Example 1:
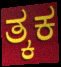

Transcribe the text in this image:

ತ್ಕಕ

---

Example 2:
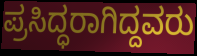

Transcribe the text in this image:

ಪ್ರಸಿದ್ಧರಾಗಿದ್ದವರು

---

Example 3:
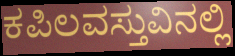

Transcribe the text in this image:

ಕಪಿಲವಸ್ತುವಿನಲ್ಲಿ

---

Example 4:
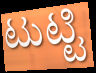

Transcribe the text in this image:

ಟುಟ್ಟಿ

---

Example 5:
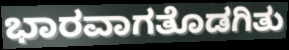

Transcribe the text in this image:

ಭಾರವಾಗತೊಡಗಿತು